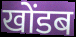
खोंडब